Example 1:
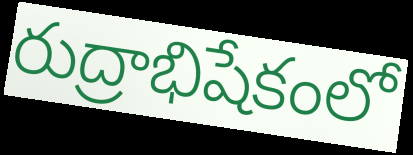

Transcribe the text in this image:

రుద్రాభిషేకంలో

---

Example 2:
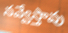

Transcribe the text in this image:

నవ్వేస్తావు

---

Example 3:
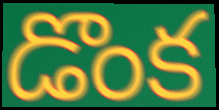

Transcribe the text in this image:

డొంక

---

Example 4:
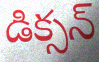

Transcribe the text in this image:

డిక్సన్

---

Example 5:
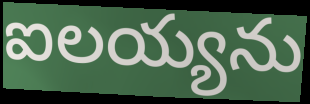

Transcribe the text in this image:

ఐలయ్యను